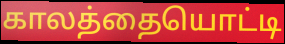
காலத்தையொட்டி